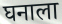
घनाला